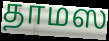
தாமஸ